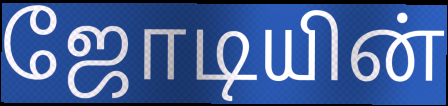
ஜோடியின்